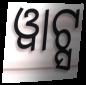
ୱାଟ୍ସ